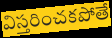
విస్తరించకపోతే